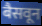
बैसवून